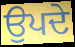
ਉਪਦੇ